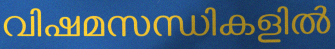
വിഷമസന്ധികളിൽ